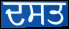
ਦਸਤ